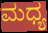
ಮಧ್ಯ